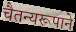
चैतन्यरूपाने